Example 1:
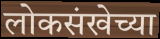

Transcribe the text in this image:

लोकसंखेच्या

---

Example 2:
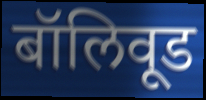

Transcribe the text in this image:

बॉलिवूड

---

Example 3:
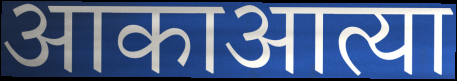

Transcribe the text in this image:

आकाआत्या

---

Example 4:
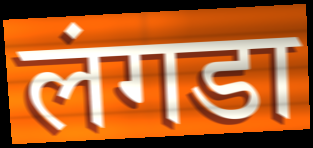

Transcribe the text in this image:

लंगडा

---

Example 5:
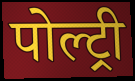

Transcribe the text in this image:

पोल्ट्री